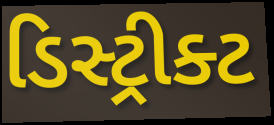
ડિસ્ટ્રીક્ટ